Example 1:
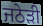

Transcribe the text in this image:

ਜਠੇੜੀ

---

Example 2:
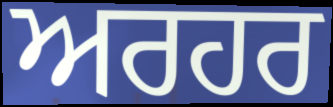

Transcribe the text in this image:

ਅਰਹਰ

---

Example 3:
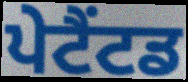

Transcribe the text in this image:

ਪੇਟੈਂਟਡ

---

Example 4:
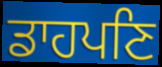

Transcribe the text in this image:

ਡਾਹਪਣਿ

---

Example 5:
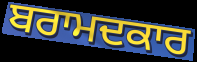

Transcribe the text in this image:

ਬਰਾਮਦਕਾਰ